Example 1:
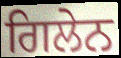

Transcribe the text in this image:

ਗਿਲੇਨ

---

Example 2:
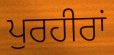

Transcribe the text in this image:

ਪੁਰਹੀਰਾਂ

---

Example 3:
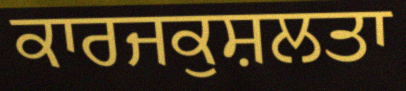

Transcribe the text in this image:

ਕਾਰਜਕੁਸ਼ਲਤਾ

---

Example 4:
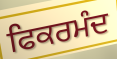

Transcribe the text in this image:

ਫਿਕਰਮੰਦ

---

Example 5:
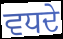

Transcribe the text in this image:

ਵਧਦੇ